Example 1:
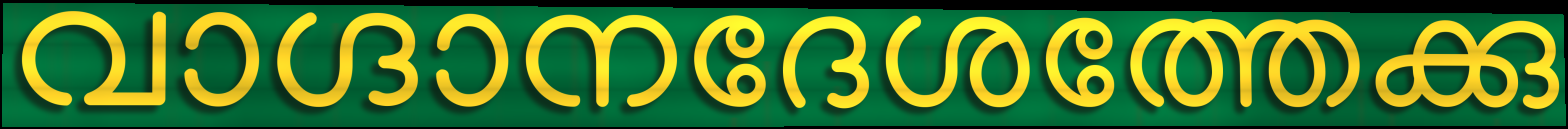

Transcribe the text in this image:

വാഗ്ദാനദേശത്തേക്കു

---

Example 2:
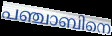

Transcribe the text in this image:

പഞ്ചാബിനെ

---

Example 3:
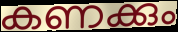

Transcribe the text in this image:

കണക്കും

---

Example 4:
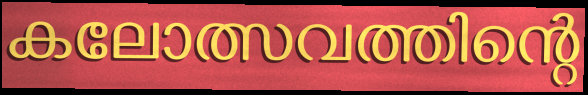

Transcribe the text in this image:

കലോത്സവത്തിന്റെ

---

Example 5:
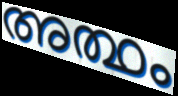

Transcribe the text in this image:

അത്ഥം